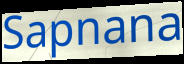
Sapnana